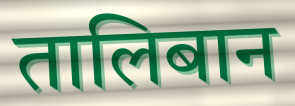
तालिबान